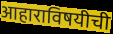
आहाराविषयीची